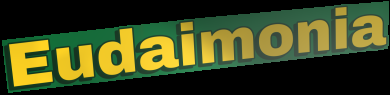
Eudaimonia